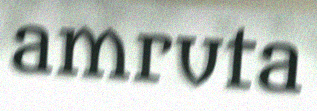
amruta